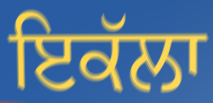
ਇਕੱਲਾ